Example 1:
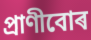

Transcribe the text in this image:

প্ৰাণীবোৰ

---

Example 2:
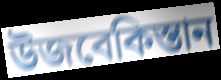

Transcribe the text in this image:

উজবেকিস্তান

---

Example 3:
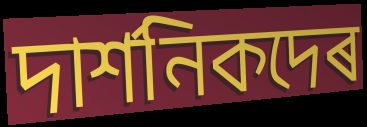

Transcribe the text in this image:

দাৰ্শনিকদেৰ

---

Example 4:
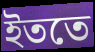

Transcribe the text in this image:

ইততে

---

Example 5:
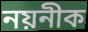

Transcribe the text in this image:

নয়নীক